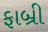
ફાબ્રી